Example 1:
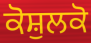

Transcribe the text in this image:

ਕੋਸ਼ੁਲਕੋ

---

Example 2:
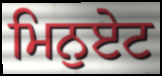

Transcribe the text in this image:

ਮਿਨੁਏਟ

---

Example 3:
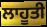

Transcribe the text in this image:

ਲਾਹੂਤੀ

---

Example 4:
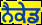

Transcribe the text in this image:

ਨੈਕੇਡ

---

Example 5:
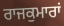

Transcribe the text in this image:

ਰਾਜਕੁਮਾਰਾਂ